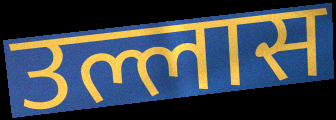
उल्लास